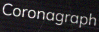
Coronagraph